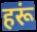
हरूं